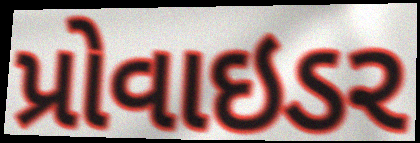
પ્રોવાઇડર